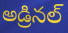
అడ్రినల్